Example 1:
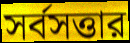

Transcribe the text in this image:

সর্বসত্তার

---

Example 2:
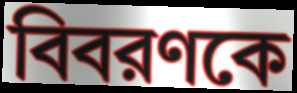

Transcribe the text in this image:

বিবরণকে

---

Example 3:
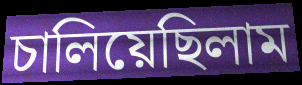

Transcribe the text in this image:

চালিয়েছিলাম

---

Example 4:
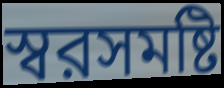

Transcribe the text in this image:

স্বরসমষ্টি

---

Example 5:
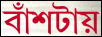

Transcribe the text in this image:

বাঁশটায়